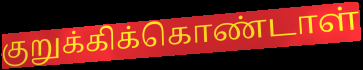
குறுக்கிக்கொண்டாள்